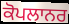
ਕੋਪਲਾਨਰ